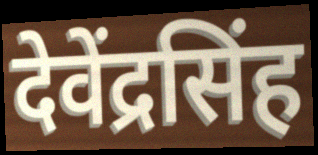
देवेंद्रसिंह